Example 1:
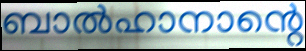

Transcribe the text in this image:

ബാൽഹാനാന്റെ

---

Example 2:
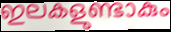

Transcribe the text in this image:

ഇലകളുണ്ടാകും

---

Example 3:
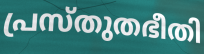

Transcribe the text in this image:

പ്രസ്തുതഭീതി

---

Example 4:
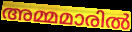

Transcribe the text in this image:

അമ്മമാരിൽ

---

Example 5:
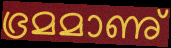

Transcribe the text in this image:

ഭ്രമമാണു്